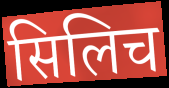
सिलिच